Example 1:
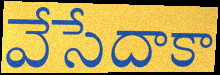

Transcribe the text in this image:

వేసేదాకా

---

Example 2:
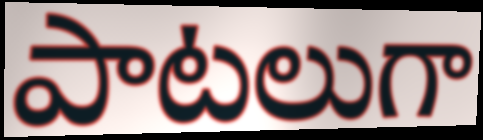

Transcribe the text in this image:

పాటలుగా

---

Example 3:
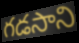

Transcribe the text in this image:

గడసాని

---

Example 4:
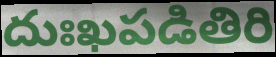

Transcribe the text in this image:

దుఃఖపడితిరి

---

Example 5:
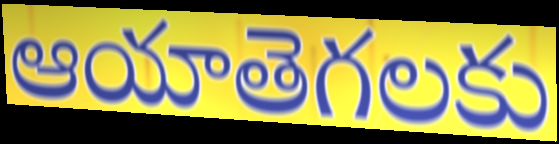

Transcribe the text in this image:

ఆయాతెగలకు